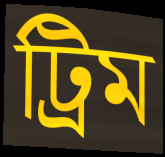
ট্ৰিম